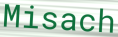
Misach